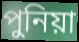
পুনিয়া